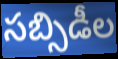
సబ్సిడీల